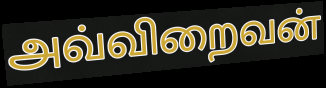
அவ்விறைவன்